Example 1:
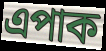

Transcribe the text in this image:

এপাক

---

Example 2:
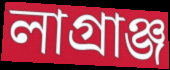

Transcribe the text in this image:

লাগ্ৰাঞ্জ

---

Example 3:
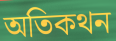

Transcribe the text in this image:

অতিকথন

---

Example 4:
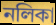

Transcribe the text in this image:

নলিকা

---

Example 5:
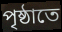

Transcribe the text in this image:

পৃষ্ঠাতে